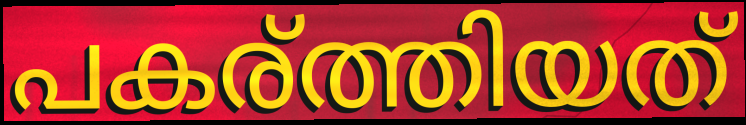
പകര്ത്തിയത്